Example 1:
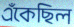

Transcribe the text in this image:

এঁকেছিল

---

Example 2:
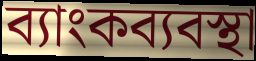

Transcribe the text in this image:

ব্যাংকব্যবস্থা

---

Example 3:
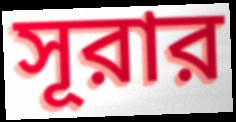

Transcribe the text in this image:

সূরার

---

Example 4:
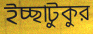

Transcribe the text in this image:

ইচ্ছাটুকুর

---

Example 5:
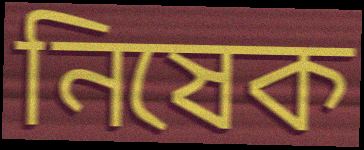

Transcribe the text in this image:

নিষেক